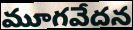
మూగవేదన